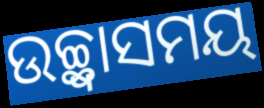
ଉଚ୍ଛ୍ୱାସମୟ